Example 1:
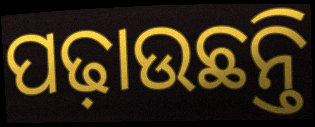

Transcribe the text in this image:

ପଢ଼ାଉଛନ୍ତି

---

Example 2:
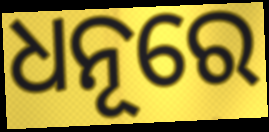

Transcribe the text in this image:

ଧନୂରେ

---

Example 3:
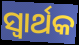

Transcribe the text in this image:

ସ୍ବାର୍ଥକ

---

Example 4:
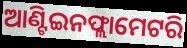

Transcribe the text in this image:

ଆଣ୍ଟିଇନଫ୍ଲାମେଟରି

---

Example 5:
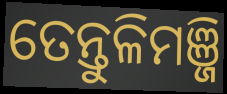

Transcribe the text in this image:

ତେନ୍ତୁଳିମଞ୍ଜି